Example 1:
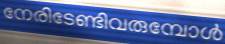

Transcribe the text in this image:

നേരിടേണ്ടിവരുമ്പോൾ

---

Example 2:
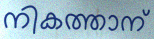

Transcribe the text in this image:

നികത്താന്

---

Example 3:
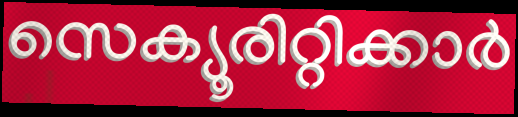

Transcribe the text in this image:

സെക്യൂരിറ്റിക്കാർ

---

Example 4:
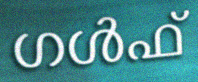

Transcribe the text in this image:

ഗൾഫ്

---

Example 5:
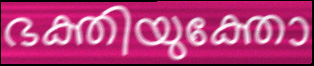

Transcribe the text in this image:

ഭക്തിയുക്തോ